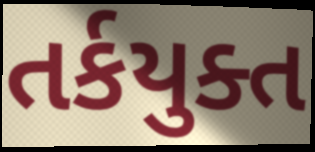
તર્કયુક્ત